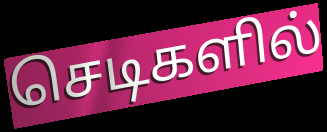
செடிகளில்